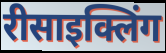
रीसाइक्लिंग